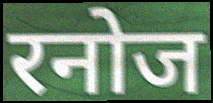
रनोज